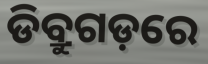
ଡିବ୍ରୁଗଡ଼ରେ